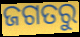
ଜଗତରୁ